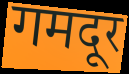
गमदूर